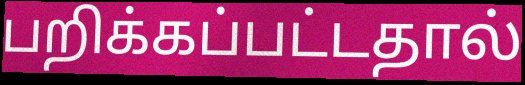
பறிக்கப்பட்டதால்